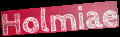
Holmiae